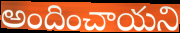
అందించాయని